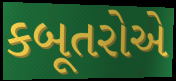
કબૂતરોએ